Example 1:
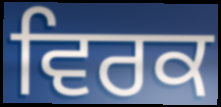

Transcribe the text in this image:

ਵਿਰਕ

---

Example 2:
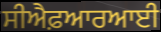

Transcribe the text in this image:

ਸੀਐਫ਼ਆਰਆਈ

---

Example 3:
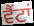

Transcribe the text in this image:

ਵੈਂਟਾਂ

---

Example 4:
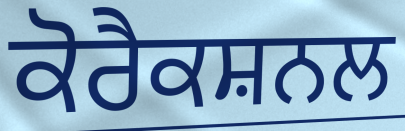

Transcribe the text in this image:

ਕੋਰੈਕਸ਼ਨਲ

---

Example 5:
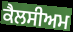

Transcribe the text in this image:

ਕੈਲਸੀਅਮ